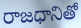
రాజధానితో